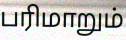
பரிமாறும்